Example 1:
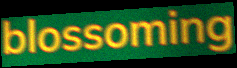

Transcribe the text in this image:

blossoming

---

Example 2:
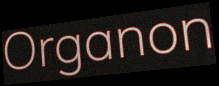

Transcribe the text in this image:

Organon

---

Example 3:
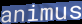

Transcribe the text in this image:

animus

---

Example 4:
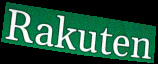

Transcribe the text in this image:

Rakuten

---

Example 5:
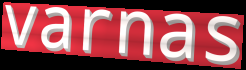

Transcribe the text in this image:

varnas